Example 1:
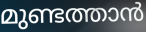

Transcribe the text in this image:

മുണ്ടത്താൻ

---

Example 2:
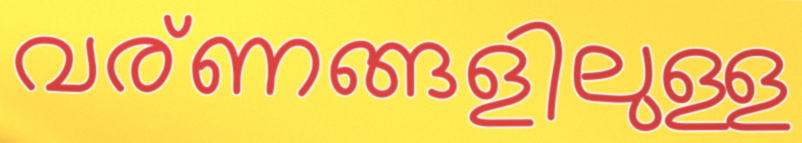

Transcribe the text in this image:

വര്ണങ്ങളിലുള്ള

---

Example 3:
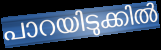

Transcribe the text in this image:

പാറയിടുക്കിൽ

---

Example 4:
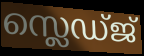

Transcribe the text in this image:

സ്ലെഡ്ജ്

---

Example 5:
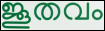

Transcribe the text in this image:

ജൂതവം